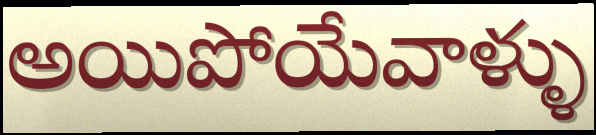
అయిపోయేవాళ్ళు